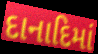
દાનાદિમાં